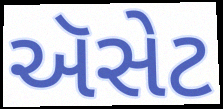
ઍસેટ